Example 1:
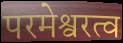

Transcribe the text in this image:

परमेश्वरत्व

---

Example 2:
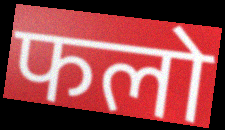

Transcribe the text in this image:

फलो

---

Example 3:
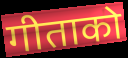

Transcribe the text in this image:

गीताको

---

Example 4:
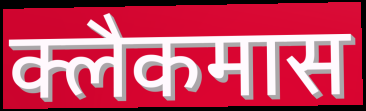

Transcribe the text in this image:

क्लैकमास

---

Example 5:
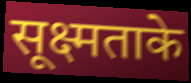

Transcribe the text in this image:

सूक्ष्मताके